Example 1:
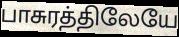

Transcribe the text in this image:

பாசுரத்திலேயே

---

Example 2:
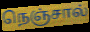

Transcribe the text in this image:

நெஞ்சால்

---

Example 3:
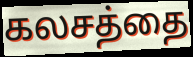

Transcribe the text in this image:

கலசத்தை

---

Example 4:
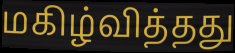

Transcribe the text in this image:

மகிழ்வித்தது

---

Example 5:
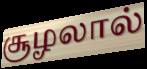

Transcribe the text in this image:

சூழலால்